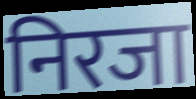
निरजा